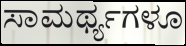
ಸಾಮರ್ಥ್ಯಗಳೂ